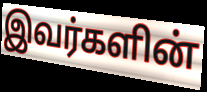
இவர்களின்